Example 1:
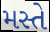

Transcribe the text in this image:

મસ્તે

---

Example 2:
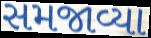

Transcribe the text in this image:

સમજાવ્યા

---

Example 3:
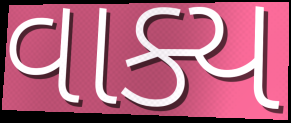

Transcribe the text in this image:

વાક્ય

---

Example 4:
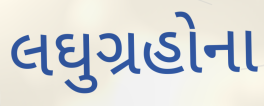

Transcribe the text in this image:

લઘુગ્રહોના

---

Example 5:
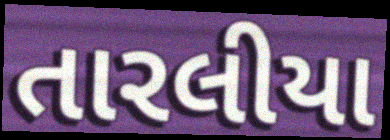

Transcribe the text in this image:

તારલીયા